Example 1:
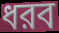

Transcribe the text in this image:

ধরব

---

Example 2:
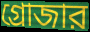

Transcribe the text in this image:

গ্রোজার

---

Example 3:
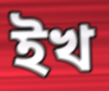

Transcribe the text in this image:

ইখ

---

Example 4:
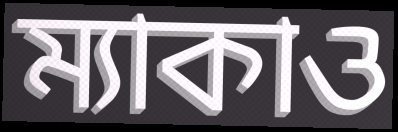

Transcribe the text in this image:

ম্যাকাও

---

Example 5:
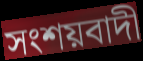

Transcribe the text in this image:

সংশয়বাদী